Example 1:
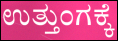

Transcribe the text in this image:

ಉತ್ತುಂಗಕ್ಕೆ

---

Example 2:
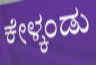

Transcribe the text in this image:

ಕೇಳ್ಕಂಡು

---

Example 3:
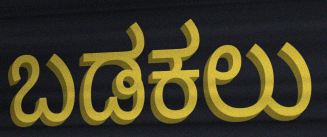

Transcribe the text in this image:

ಬಡಕಲು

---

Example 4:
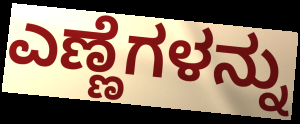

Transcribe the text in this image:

ಎಣ್ಣೆಗಳನ್ನು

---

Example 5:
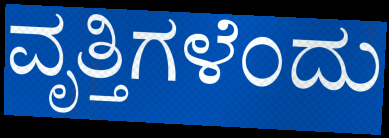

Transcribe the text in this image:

ವೃತ್ತಿಗಳೆಂದು